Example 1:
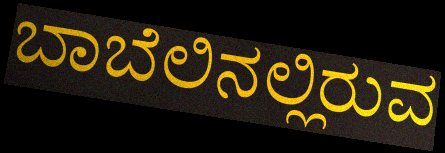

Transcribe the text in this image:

ಬಾಬೆಲಿನಲ್ಲಿರುವ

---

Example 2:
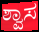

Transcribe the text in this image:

ಶ್ವಾಸ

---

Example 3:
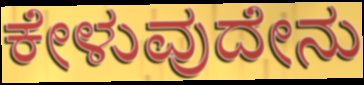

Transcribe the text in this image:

ಕೇಳುವುದೇನು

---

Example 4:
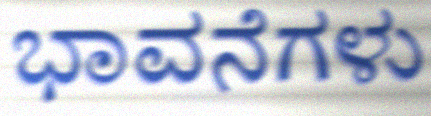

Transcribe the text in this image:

ಭಾವನೆಗಳು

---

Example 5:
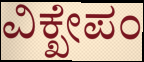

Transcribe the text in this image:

ವಿಕ್ಖೇಪಂ